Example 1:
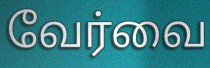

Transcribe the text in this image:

வேர்வை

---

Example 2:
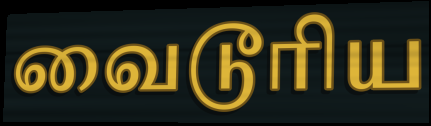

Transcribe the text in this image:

வைடூரிய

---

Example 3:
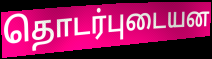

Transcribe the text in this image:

தொடர்புடையன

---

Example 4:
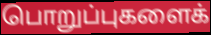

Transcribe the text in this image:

பொறுப்புகளைக்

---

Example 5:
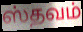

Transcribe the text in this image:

ஸ்தவம்